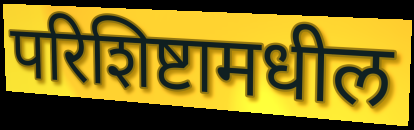
परिशिष्टामधील